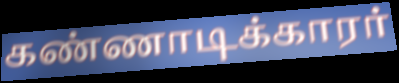
கண்ணாடிக்காரர்